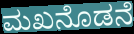
ಮಖನೊಡನೆ